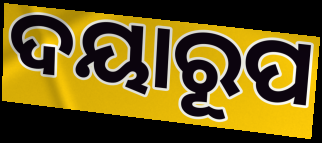
ଦୟାରୂପ